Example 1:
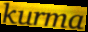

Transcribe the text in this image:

kurma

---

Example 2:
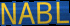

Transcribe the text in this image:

NABL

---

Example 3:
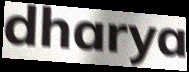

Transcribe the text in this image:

dharya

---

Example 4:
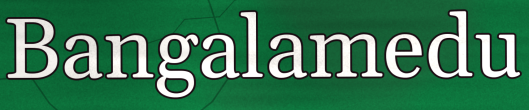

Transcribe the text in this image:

Bangalamedu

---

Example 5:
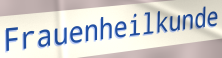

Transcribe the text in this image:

Frauenheilkunde